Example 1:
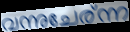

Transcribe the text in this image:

വന്നുചേര്ന്ന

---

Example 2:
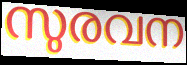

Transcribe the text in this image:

സുരവന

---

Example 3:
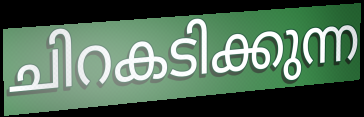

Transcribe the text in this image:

ചിറകടിക്കുന്ന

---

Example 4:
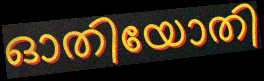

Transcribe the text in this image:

ഓതിയോതി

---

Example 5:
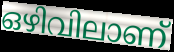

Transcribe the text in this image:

ഒഴിവിലാണ്